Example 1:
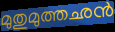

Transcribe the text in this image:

മുതുമുത്തഛൻ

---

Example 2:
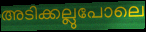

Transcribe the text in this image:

അടിക്കല്ലുപോലെ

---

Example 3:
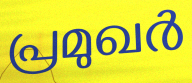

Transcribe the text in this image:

പ്രമുഖർ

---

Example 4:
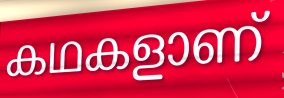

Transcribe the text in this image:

കഥകളാണ്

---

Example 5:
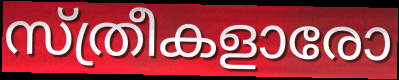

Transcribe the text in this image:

സ്ത്രീകളാരോ